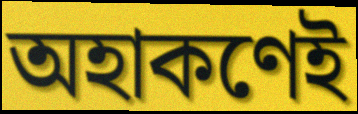
অহাকণেই